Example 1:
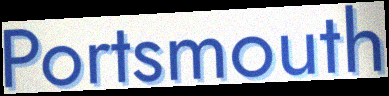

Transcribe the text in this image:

Portsmouth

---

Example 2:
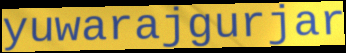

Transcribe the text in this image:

yuwarajgurjar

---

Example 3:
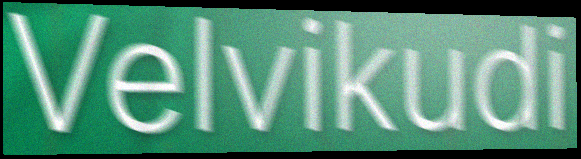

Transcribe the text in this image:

Velvikudi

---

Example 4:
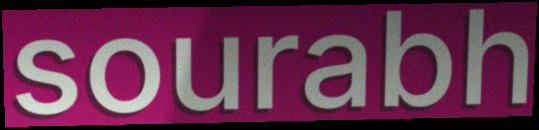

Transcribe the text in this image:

sourabh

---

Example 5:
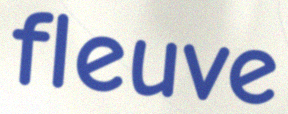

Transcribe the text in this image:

fleuve